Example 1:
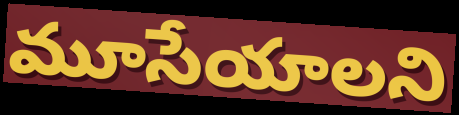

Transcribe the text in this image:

మూసేయాలని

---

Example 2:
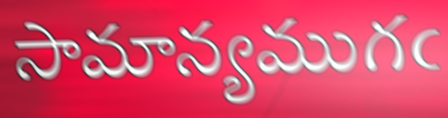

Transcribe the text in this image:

సామాన్యముగఁ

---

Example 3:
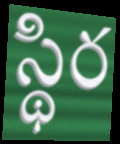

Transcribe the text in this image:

స్థిర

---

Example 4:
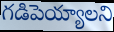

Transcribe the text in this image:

గడిపెయ్యాలని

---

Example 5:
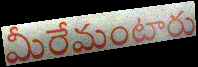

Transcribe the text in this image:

మీరేమంటారు